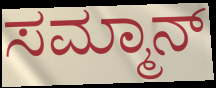
ಸಮ್ಮಾನ್